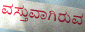
ವಸ್ತುವಾಗಿರುವ